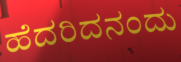
ಹೆದರಿದನಂದು